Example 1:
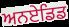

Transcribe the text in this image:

ਅਨਏਡਿਡ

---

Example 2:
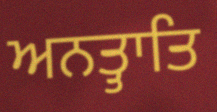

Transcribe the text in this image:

ਅਨਤ੍ਤਾਤਿ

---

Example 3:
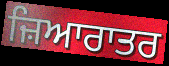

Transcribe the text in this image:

ਜ਼ਿਆਰਾਤਰ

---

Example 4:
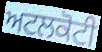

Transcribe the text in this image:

ਅਟਲਕੋਟੀ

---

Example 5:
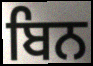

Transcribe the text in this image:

ਬਿਨ